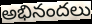
అభినందలు